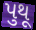
પુથૂ